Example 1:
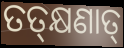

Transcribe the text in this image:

ତତ୍କ୍ଷଣାତ୍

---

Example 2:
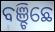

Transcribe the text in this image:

ବଞ୍ଚିଛେ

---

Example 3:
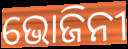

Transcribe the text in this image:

ଭୋଜିନୀ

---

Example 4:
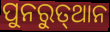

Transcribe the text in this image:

ପୁନରୁତ୍‌ଥାନ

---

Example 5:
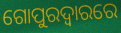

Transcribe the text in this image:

ଗୋପୁରଦ୍ବାରରେ